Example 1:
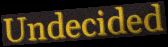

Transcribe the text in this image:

Undecided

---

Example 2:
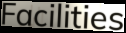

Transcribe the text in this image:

Facilities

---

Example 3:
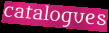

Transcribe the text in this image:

catalogues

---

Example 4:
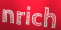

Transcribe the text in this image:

nrich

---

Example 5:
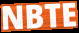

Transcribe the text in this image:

NBTE